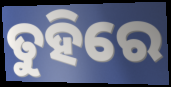
ତୁହିରେ